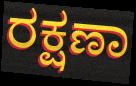
ರಕ್ಷಣಾ